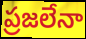
ప్రజలేనా